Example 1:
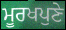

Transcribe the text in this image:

ਮੂਰਖਪੁਣੇ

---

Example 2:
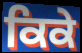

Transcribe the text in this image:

ਕਿਕੇ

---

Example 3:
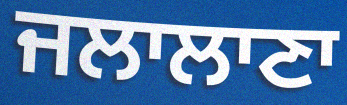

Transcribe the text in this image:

ਜਲਾਲਾਣਾ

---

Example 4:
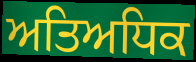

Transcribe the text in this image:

ਅਤਿਅਧਿਕ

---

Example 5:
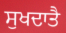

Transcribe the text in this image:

ਸੁਖਦਾਤੈ